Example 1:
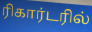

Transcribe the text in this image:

ரிகார்டரில்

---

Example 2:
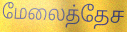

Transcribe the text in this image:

மேலைத்தேச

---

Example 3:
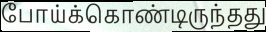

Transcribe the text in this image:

போய்க்கொண்டிருந்தது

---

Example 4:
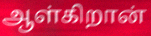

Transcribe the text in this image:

ஆள்கிறான்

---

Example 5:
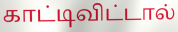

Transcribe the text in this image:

காட்டிவிட்டால்